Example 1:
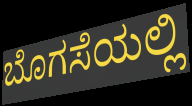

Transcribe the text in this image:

ಬೊಗಸೆಯಲ್ಲಿ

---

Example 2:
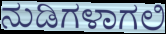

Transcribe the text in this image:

ನುಡಿಗಳಾಗಲಿ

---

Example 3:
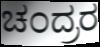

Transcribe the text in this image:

ಚಂದ್ರರ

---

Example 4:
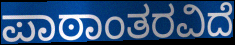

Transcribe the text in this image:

ಪಾಠಾಂತರವಿದೆ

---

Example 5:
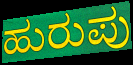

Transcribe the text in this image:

ಹುರುಪು